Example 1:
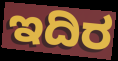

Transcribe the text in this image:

ಇದಿರ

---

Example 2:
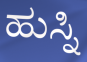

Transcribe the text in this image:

ಹುಸ್ನಿ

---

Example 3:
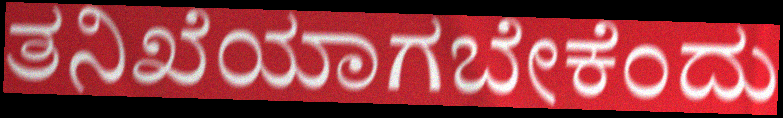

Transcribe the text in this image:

ತನಿಖೆಯಾಗಬೇಕೆಂದು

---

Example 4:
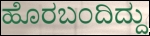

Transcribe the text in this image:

ಹೊರಬಂದಿದ್ದು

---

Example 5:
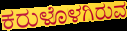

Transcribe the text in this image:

ಕರುಳೊಳಗಿರುವ